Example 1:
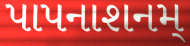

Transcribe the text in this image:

પાપનાશનમ્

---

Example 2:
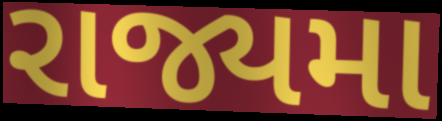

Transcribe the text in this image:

રાજ્યમા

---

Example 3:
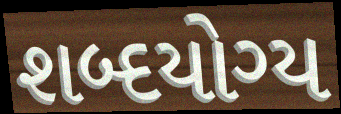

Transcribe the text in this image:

શબ્દયોગ્ય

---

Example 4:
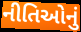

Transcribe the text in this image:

નીતિઓનું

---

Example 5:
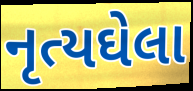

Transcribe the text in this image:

નૃત્યઘેલા